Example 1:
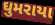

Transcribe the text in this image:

ઘુમરાયા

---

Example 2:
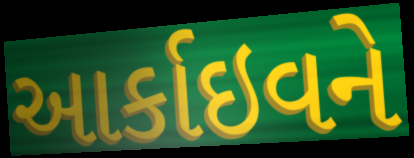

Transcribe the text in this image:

આર્કાઇવને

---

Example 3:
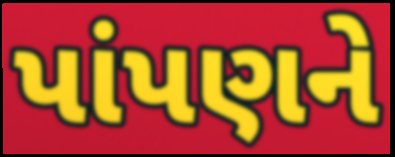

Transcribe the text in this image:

પાંપણને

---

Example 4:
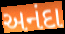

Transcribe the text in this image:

અનંદા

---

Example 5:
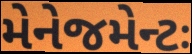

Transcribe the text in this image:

મેનેજમેન્ટઃ